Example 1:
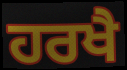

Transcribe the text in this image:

ਹਰਖੈ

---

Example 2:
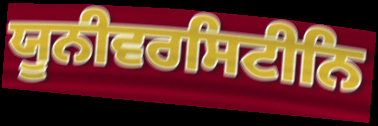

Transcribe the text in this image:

ਯੂਨੀਵਰਸਿਟੀਨਿ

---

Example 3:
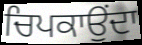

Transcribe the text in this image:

ਚਿਪਕਾਉਂਦਾ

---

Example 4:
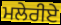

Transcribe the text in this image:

ਮਲੇਰੀਏ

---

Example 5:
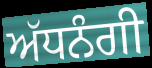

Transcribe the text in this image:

ਅੱਧਨੰਗੀ